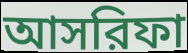
আসরিফা